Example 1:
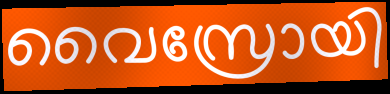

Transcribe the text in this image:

വൈസ്രോയി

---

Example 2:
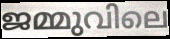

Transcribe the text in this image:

ജമ്മുവിലെ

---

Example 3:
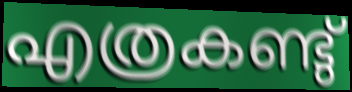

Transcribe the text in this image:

എത്രകണ്ടു്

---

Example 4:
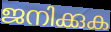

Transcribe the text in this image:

ജനിക്കുക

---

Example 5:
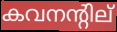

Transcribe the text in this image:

കവനന്റില്